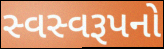
સ્વસ્વરૂપનો